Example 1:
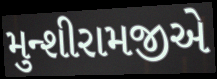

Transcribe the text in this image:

મુન્શીરામજીએ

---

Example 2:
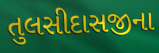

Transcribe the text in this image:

તુલસીદાસજીના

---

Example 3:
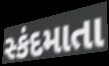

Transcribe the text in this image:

સ્કંદમાતા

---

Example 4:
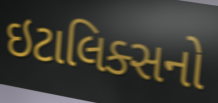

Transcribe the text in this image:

ઇટાલિક્સનો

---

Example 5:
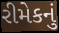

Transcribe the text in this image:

રીમેકનું